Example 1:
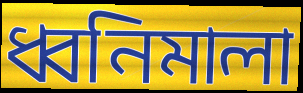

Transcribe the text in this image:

ধ্বনিমালা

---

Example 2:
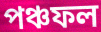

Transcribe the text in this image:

পঞ্চফল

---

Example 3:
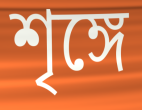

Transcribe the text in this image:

শৃঙ্গে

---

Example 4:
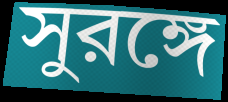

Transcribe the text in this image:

সুরঙ্গে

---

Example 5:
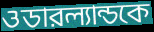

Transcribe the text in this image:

ওডারল্যান্ডকে